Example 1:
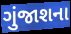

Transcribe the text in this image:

ગુંજાશના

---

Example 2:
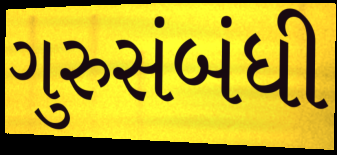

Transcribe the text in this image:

ગુરુસંબંધી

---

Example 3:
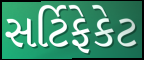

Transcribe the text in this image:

સર્ટિફેકેટ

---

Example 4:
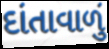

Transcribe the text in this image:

દાંતાવાળું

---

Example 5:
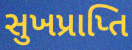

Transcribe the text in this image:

સુખપ્રાપ્તિ